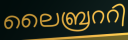
ലൈബ്രററി